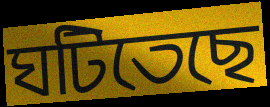
ঘটিতেছে